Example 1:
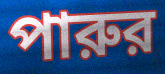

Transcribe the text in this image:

পারুর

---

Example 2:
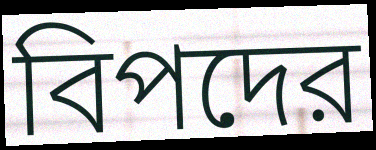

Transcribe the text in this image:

বিপদের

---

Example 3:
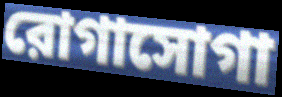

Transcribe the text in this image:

রোগাসোগা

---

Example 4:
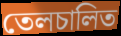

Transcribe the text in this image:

তেলচালিত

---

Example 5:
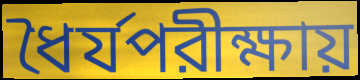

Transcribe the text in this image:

ধৈর্যপরীক্ষায়